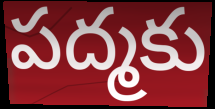
పద్మకు